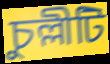
চুল্লীটি